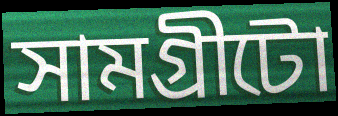
সামগ্ৰীটো